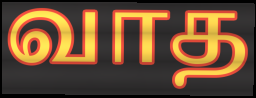
வாத